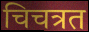
चिचत्रत